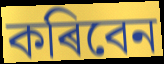
কৰিবেন